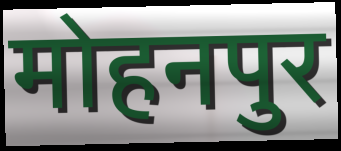
मोहनपुर